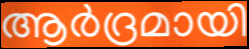
ആർദ്രമായി